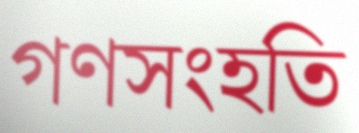
গণসংহতি